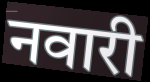
नवारी